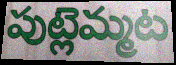
పుట్లెమ్మట